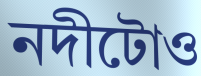
নদীটোও